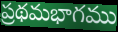
ప్రథమభాగము